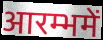
आरम्भमें